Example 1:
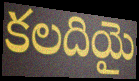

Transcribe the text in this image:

కలదియై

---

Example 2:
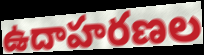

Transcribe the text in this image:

ఉదాహరణల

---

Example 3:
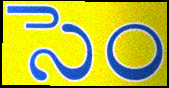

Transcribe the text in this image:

సెం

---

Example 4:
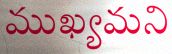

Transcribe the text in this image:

ముఖ్యమని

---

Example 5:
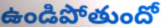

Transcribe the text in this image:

ఉండిపోతుందో